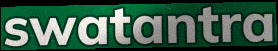
swatantra